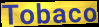
Tobaco